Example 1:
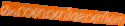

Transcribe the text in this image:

മഹാബാബിലോണിനെ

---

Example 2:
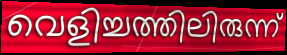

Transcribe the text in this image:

വെളിച്ചത്തിലിരുന്ന്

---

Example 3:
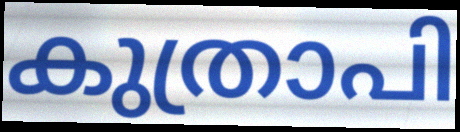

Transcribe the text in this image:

കുത്രാപി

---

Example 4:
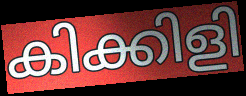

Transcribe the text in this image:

കിക്കിളി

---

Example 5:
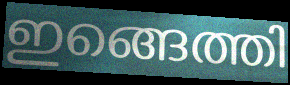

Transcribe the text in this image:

ഇങ്ങെത്തി